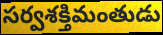
సర్వశక్తిమంతుడు